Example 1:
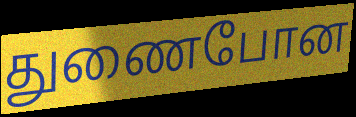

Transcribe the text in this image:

துணைபோன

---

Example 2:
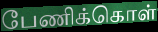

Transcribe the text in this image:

பேணிக்கொள்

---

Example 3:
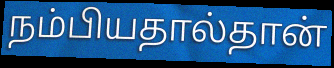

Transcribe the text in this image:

நம்பியதால்தான்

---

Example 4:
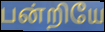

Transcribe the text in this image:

பன்றியே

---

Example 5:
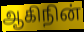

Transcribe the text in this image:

ஆகிநின்